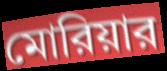
মোরিয়ার